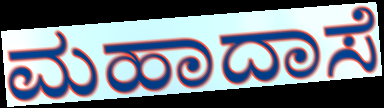
ಮಹಾದಾಸೆ